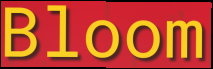
Bloom